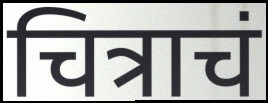
चित्राचं